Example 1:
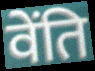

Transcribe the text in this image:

वेंति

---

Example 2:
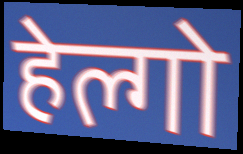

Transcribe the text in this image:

हेल्गो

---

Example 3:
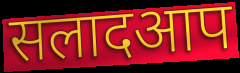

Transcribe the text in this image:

सलादआप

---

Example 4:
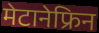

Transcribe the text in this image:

मेटानेफ्रिन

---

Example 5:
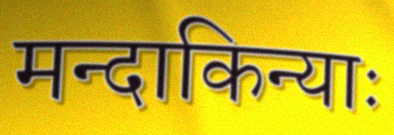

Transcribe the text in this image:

मन्दाकिन्याः